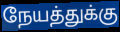
நேயத்துக்கு